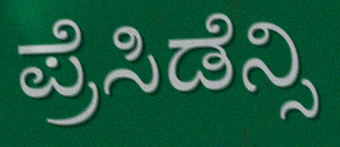
ಪ್ರೆಸಿಡೆನ್ಸಿ